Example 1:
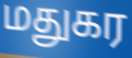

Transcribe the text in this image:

மதுகர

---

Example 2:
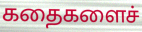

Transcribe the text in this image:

கதைகளைச்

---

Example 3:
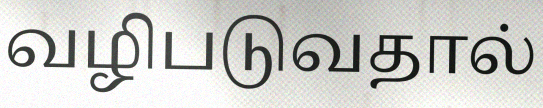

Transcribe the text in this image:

வழிபடுவதால்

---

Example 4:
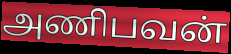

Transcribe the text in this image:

அணிபவன்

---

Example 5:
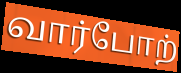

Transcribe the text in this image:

வார்போற்